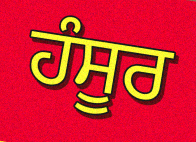
ਹੰਸੂਰ